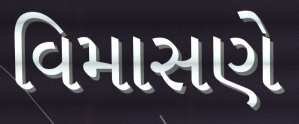
વિમાસણે